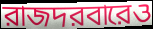
রাজদরবারেও